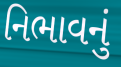
નિભાવનું